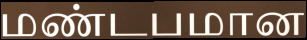
மண்டபமான